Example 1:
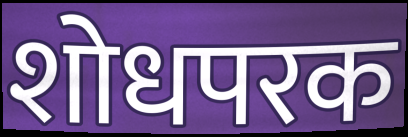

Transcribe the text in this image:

शोधपरक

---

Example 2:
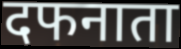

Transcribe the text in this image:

दफनाता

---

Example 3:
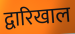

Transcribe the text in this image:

द्वारिखाल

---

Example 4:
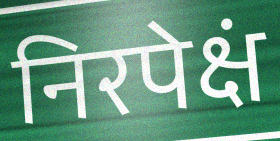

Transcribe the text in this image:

निरपेक्षं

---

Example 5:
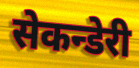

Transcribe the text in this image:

सेकन्डेरी